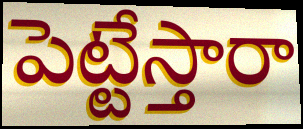
పెట్టేస్తారా